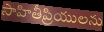
సాహితీప్రియులను